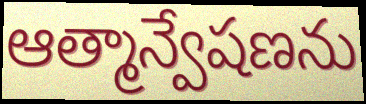
ఆత్మాన్వేషణను